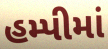
હમ્પીમાં